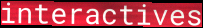
interactives